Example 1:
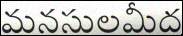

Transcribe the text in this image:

మనసులమీద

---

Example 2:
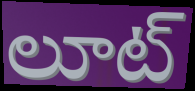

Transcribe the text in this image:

లూట్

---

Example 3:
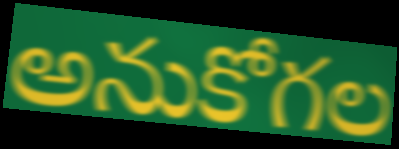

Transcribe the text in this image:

అనుకోగల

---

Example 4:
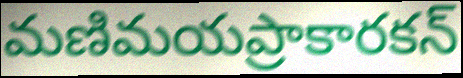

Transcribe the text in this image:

మణిమయప్రాకారకన్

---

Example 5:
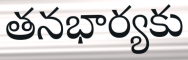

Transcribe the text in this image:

తనభార్యకు